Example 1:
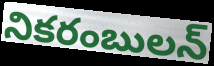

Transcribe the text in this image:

నికరంబులన్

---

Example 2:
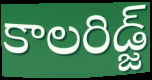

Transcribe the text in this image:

కాలరిడ్జ్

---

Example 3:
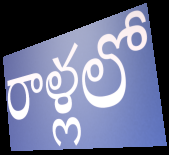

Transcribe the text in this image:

రాళ్లలో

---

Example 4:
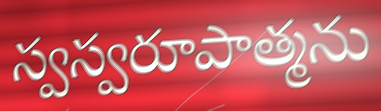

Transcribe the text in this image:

స్వస్వరూపాత్మను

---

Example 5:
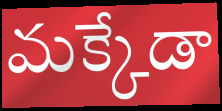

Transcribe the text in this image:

మక్కేడా